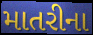
માતરીના